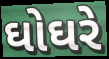
ઘોઘરે